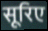
सूरिए